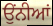
ਉੰਨੀਆਂ